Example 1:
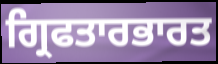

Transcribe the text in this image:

ਗ੍ਰਿਫਤਾਰਭਾਰਤ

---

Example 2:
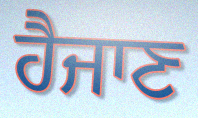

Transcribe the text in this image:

ਹੈਜਾਣ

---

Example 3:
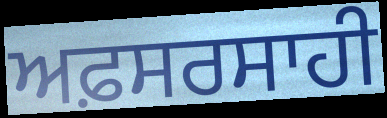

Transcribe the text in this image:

ਅਫ਼ਸਰਸਾਹੀ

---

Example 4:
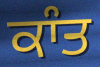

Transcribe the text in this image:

ਕਾੰਤ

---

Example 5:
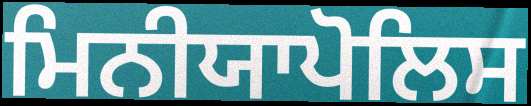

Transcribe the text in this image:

ਮਿਨੀਯਾਪੋਲਿਸ